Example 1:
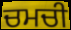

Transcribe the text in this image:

ਚਮਚੀ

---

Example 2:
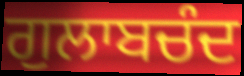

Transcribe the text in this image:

ਗੁਲਾਬਚੰਦ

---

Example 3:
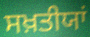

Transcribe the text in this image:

ਸਖ਼ਤੀਯਾਂ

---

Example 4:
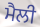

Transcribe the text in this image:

ਮੈਲੀ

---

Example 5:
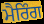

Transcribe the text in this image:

ਮੈਰਿੰਗ